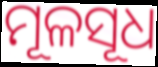
ମୂଳସୂଧ